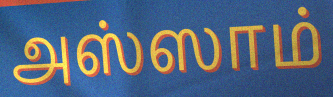
அஸ்ஸாம்